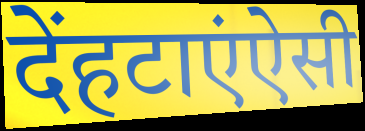
देंहटाएंऐसी